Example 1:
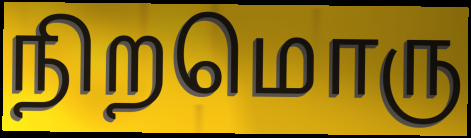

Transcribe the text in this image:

நிறமொரு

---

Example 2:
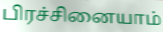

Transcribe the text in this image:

பிரச்சினையாம்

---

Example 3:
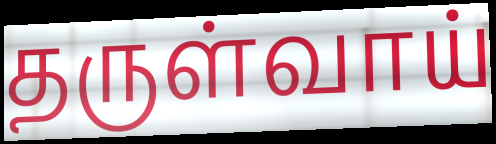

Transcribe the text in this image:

தருள்வாய்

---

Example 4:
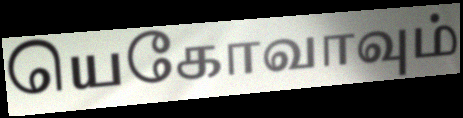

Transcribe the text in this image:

யெகோவாவும்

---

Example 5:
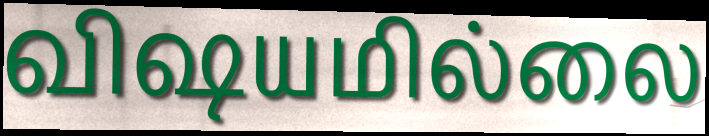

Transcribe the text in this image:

விஷயமில்லை